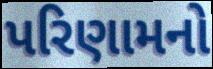
પરિણામનો